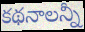
కథనాలన్నీ